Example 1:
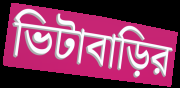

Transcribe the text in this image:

ভিটাবাড়ির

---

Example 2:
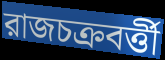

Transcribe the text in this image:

রাজচক্রবর্ত্তী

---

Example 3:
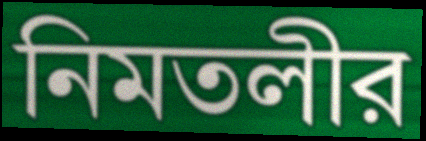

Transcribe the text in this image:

নিমতলীর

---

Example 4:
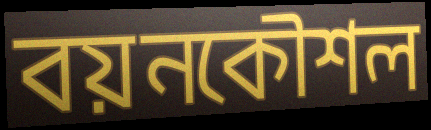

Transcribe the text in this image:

বয়নকৌশল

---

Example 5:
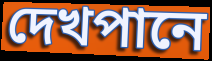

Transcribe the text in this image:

দেখপানে